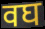
वघ